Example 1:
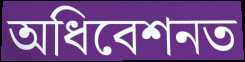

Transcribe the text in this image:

অধিবেশনত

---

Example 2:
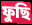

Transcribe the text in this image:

ফুছি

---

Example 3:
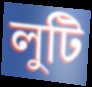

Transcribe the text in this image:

লুটি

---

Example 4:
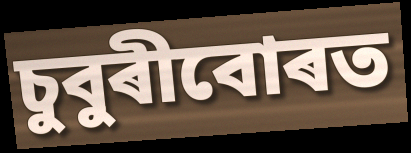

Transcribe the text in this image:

চুবুৰীবোৰত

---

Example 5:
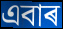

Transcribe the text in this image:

এবাৰ